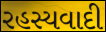
રહસ્યવાદી